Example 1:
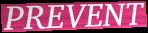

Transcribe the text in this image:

PREVENT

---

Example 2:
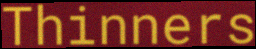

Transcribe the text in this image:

Thinners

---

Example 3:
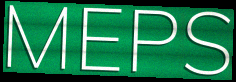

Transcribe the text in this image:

MEPS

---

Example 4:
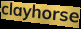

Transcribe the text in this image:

clayhorse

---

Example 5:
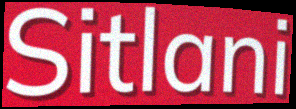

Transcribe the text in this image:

Sitlani